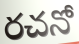
రచనో